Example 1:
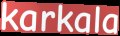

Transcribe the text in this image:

karkala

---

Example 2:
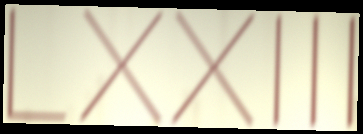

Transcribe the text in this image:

LXXIII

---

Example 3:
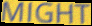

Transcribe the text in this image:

MIGHT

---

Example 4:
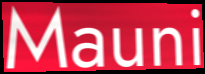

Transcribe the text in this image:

Mauni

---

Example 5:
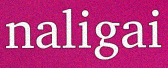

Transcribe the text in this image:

naligai